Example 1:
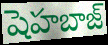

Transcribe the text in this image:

షెహబాజ్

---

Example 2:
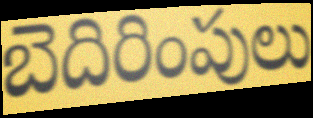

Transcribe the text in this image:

బెదిరింపులు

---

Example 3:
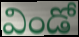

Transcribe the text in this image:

విండో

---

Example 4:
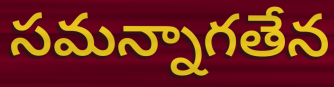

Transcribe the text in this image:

సమన్నాగతేన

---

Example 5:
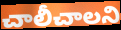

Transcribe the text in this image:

చాలీచాలని